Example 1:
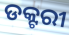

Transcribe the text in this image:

ଡକ୍ଟରୀ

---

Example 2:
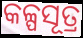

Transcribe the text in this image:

କଳ୍ପସୂତ୍ର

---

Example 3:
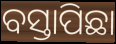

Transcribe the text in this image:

ବସ୍ତାପିଛା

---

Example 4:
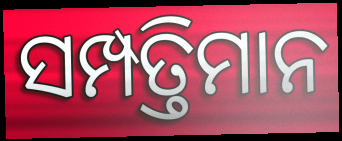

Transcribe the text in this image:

ସମ୍ପତ୍ତିମାନ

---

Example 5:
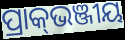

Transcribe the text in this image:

ପ୍ରାକ୍‌ଭଞ୍ଜୀୟ